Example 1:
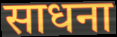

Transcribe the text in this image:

साधना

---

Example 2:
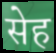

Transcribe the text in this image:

सेह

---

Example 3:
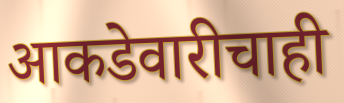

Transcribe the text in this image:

आकडेवारीचाही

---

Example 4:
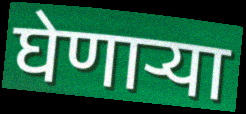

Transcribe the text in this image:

घेणार्‍या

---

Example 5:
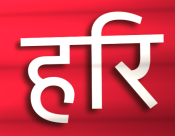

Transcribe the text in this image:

हरि